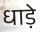
धाड़े